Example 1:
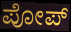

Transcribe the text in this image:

ಪೋಪ್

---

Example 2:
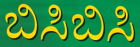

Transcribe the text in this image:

ಬಿಸಿಬಿಸಿ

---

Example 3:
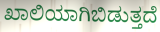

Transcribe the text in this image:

ಖಾಲಿಯಾಗಿಬಿಡುತ್ತದೆ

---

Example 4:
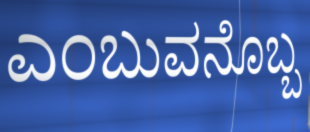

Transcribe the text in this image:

ಎಂಬುವನೊಬ್ಬ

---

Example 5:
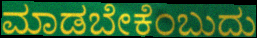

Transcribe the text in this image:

ಮಾಡಬೇಕೆಂಬುದು